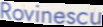
Rovinescu